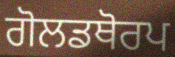
ਗੋਲਡਥੋਰਪ